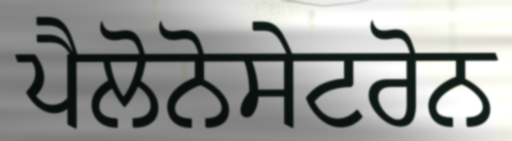
ਪੈਲੋਨੋਸੇਟਰੋਨ